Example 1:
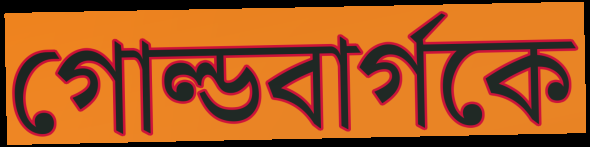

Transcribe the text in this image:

গোল্ডবার্গকে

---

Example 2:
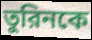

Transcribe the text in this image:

তুরিনকে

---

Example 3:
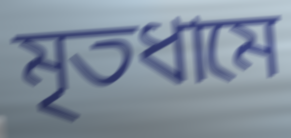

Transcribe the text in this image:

মৃতধামে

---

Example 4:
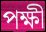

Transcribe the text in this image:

পক্ষী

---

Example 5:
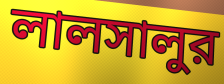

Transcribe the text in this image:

লালসালুর